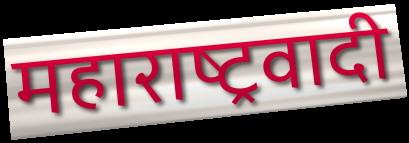
महाराष्ट्रवादी